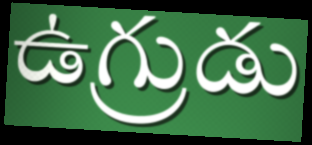
ఉగ్రుడు